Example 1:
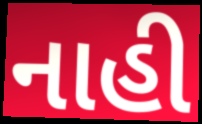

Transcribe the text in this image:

નાહી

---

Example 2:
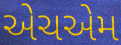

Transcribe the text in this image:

એચએમ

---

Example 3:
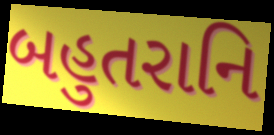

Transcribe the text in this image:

બહુતરાનિ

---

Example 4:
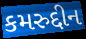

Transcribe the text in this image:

કમરુદ્દીન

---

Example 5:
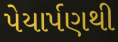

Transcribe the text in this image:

પેયાર્પણથી